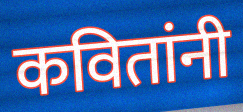
कवितांनी